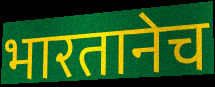
भारतानेच